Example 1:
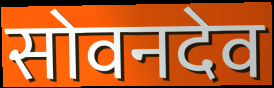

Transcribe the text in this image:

सोवनदेव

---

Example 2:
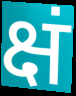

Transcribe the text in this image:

क्षं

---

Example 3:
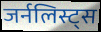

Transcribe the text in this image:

जर्नलिस्ट्स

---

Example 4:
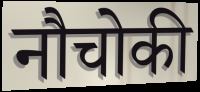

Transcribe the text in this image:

नौचोकी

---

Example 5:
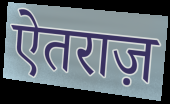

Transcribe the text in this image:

ऐतराज़